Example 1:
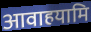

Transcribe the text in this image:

आवाहयामि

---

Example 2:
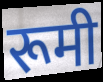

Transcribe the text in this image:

रूमी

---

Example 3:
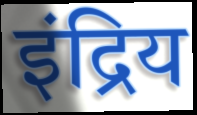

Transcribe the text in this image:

इंद्रिय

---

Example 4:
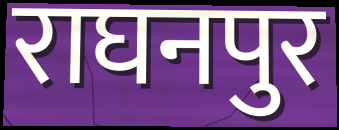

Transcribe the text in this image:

राघनपुर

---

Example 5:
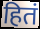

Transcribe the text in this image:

हितं